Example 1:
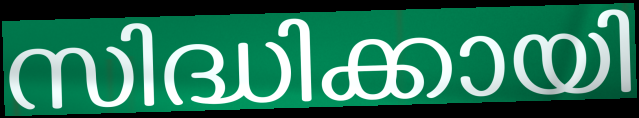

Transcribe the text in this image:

സിദ്ധിക്കായി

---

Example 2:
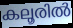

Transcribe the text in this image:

കലൂരിൽ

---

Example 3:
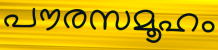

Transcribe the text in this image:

പൗരസമൂഹം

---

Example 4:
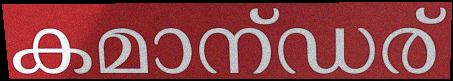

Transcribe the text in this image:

കമാന്ഡര്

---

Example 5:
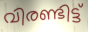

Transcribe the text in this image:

വിരണ്ടിട്ട്